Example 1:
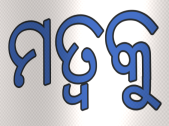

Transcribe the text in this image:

ମତ୍ୱକୁ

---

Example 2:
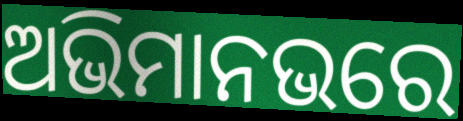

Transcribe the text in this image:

ଅଭିମାନଭରେ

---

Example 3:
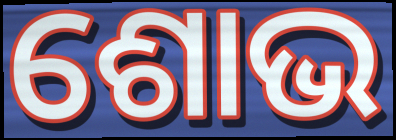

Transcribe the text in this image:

ଶୋଭ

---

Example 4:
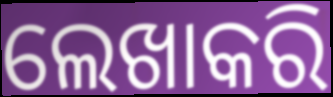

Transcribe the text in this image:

ଲେଖାକରି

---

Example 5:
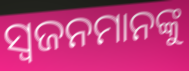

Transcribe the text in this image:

ସ୍ବଜନମାନଙ୍କୁ